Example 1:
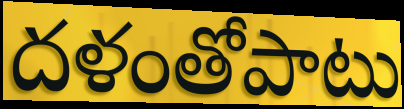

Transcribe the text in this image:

దళంతోపాటు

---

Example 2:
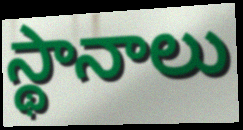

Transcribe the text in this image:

స్థానాలు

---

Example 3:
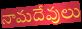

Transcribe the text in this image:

నామదేవులు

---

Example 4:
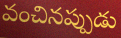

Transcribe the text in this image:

వంచినప్పుడు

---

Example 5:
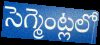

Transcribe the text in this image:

సెగ్మెంట్లలో